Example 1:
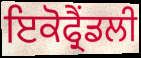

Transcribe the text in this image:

ਇਕੋਫ੍ਰੈਂਡਲੀ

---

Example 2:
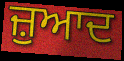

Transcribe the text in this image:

ਜ਼ੁਆਦ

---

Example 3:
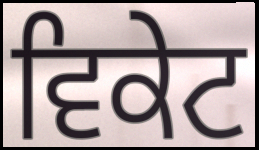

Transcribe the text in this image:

ਵਿਕੇਟ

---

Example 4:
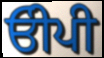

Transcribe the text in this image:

ਓੀਪੀ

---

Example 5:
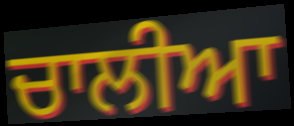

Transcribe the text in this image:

ਚਾਲੀਆ